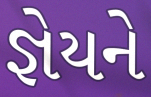
જ્ઞેયને